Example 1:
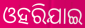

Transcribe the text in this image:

ଓହରିଯାଇ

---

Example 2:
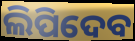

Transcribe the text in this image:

ଲିପିଦେବ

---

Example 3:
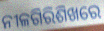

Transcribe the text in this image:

ନୀଳଗିରିଶିଖରେ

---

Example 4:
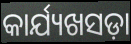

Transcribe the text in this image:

କାର୍ଯ୍ୟଖସଡ଼ା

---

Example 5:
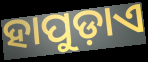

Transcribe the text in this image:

ହାପୁଡ଼ାଏ